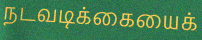
நடவடிக்கையைக்